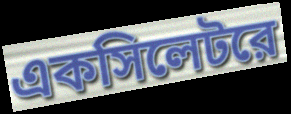
একসিলেটরে